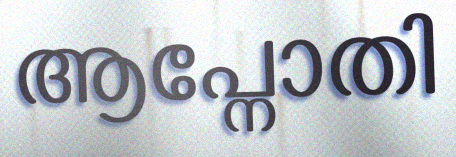
ആപ്നോതി